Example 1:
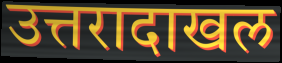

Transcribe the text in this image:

उत्तरादाखल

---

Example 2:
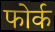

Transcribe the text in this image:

फोर्क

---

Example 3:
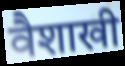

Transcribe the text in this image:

वैशाखी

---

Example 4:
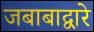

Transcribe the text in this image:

जबाबाद्वारे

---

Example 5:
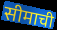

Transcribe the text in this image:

सीमाची